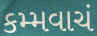
કમ્મવાચં